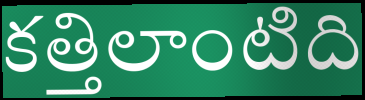
కత్తిలాంటిది